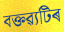
বক্তৱ্যটিৰ